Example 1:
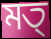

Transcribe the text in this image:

মত্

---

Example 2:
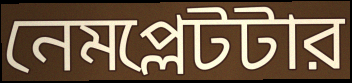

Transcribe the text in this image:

নেমপ্লেটটার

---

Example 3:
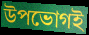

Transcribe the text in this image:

উপভোগই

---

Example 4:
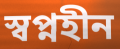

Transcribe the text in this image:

স্বপ্নহীন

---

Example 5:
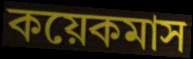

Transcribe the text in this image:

কয়েকমাস